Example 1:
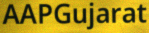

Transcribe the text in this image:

AAPGujarat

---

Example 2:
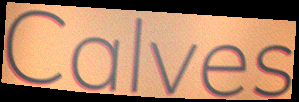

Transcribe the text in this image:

Calves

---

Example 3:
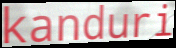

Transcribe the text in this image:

kanduri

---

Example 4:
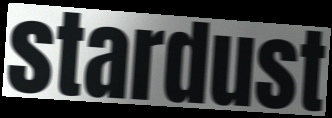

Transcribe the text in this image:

stardust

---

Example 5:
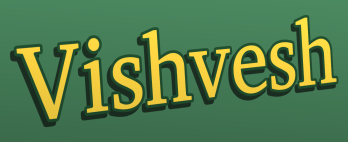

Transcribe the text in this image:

Vishvesh